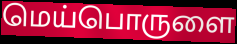
மெய்பொருளை